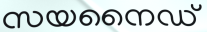
സയനൈഡ്